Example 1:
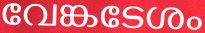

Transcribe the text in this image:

വേങ്കടേശം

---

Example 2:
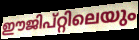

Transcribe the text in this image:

ഈജിപ്റ്റിലെയും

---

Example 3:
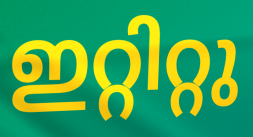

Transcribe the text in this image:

ഇറ്റിറ്റു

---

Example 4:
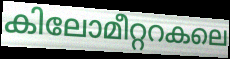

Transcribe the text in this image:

കിലോമീറ്ററകലെ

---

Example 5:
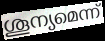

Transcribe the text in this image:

ശൂന്യമെന്ന്